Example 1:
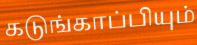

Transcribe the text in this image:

கடுங்காப்பியும்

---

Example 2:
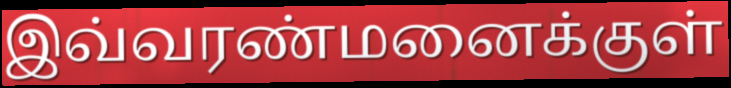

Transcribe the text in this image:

இவ்வரண்மனைக்குள்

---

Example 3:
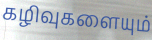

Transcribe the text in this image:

கழிவுகளையும்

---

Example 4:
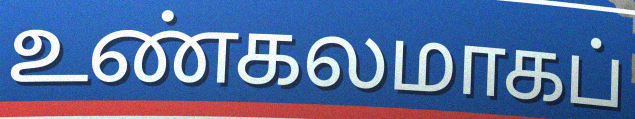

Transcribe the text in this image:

உண்கலமாகப்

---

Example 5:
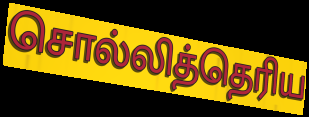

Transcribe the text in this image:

சொல்லித்தெரிய